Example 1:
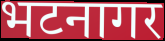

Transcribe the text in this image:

भटनागर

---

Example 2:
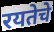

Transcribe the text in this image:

रयतेचे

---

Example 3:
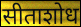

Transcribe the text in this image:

सीताशोध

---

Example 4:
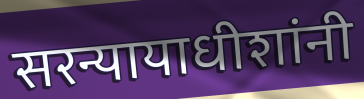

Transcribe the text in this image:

सरन्यायाधीशांनी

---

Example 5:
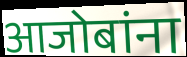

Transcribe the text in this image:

आजोबांना